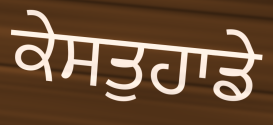
ਕੇਸਤੁਹਾਡੇ